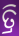
ତ୍ରି